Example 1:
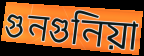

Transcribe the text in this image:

গুনগুনিয়া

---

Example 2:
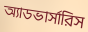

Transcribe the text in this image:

অ্যাডভার্সারিস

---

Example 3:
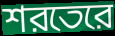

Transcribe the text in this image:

শরতেরে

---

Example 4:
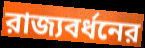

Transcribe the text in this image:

রাজ্যবর্ধনের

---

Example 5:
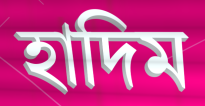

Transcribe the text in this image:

হাদিম